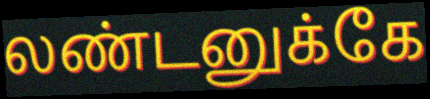
லண்டனுக்கே